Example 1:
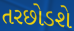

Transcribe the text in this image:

તરછોડશે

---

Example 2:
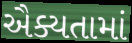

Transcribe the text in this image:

ઐક્યતામાં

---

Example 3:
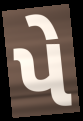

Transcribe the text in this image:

પે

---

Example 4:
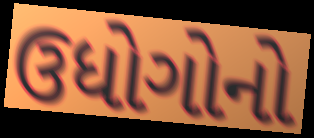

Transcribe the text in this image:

ઉધોગોનો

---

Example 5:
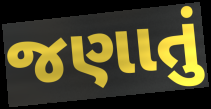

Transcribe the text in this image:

જણાતું